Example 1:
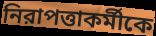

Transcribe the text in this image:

নিরাপত্তাকর্মীকে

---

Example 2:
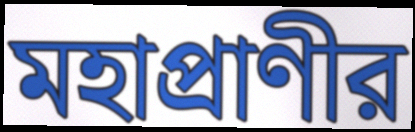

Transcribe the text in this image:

মহাপ্রাণীর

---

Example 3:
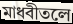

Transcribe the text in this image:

মাধবীতলে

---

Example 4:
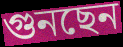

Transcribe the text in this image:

গুনছেন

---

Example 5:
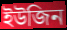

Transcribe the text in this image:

ইউজিন